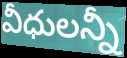
వీధులన్నీ